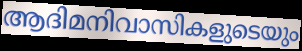
ആദിമനിവാസികളുടെയും